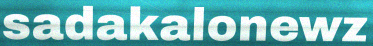
sadakalonewz